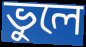
ভুলে